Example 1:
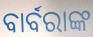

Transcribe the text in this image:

ବାର୍ବରାଙ୍କ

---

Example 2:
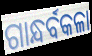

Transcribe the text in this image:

ଗାନ୍ଧର୍ବକଳା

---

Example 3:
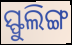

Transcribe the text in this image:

ସ୍ଫୁଲିଙ୍ଗ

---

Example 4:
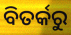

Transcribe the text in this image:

ବିତର୍କରୁ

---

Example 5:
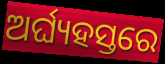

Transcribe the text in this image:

ଅର୍ଘ୍ୟହସ୍ତରେ